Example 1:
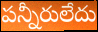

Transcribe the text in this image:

పన్నీరులేదు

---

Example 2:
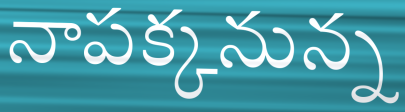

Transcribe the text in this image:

నాపక్కనున్న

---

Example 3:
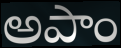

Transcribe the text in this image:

అపాం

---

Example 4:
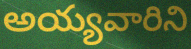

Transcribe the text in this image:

అయ్యవారిని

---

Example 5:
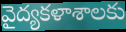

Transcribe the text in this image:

వైద్యకళాశాలకు